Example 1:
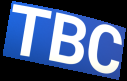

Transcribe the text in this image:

TBC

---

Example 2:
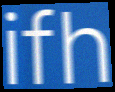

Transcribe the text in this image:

ifh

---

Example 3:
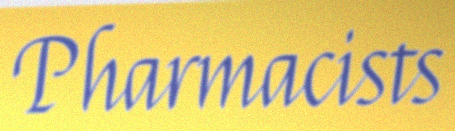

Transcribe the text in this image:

Pharmacists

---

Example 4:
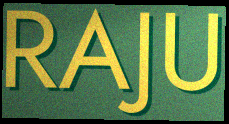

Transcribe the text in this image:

RAJU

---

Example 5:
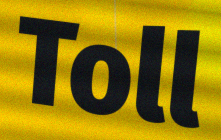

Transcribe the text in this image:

Toll